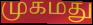
முகமது